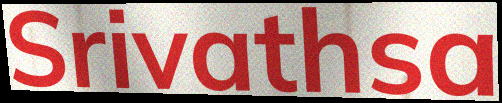
Srivathsa